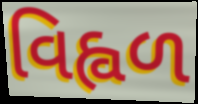
વિહ્વળ